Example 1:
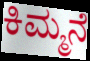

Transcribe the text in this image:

ಕಿಮ್ಮನೆ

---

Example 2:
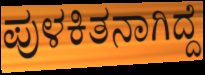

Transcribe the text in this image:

ಪುಳಕಿತನಾಗಿದ್ದೆ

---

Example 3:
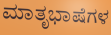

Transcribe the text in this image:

ಮಾತೃಭಾಷೆಗಳ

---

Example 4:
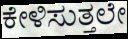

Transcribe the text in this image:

ಕೇಳಿಸುತ್ತಲೇ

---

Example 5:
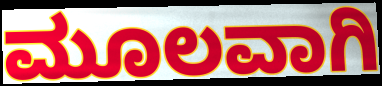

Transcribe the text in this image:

ಮೂಲವಾಗಿ